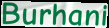
Burhani